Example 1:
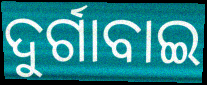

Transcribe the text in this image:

ଦୁର୍ଗାବାଇ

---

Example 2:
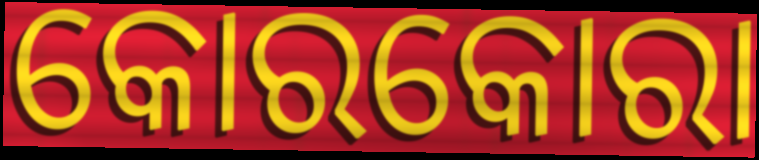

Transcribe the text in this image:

କୋରକୋରା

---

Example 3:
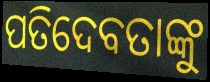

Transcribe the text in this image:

ପତିଦେବତାଙ୍କୁ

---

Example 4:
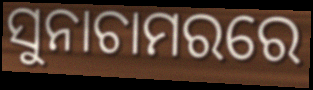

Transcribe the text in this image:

ସୁନାଚାମରରେ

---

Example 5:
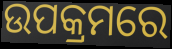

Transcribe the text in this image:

ଉପକ୍ରମରେ